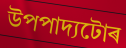
উপপাদ্যটোৰ